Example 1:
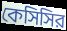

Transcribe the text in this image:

কেসিসির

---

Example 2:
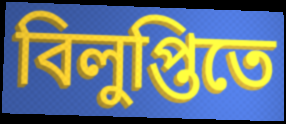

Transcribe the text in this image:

বিলুপ্তিতে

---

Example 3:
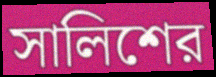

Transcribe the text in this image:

সালিশের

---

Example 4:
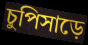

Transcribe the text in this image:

চুপিসাড়ে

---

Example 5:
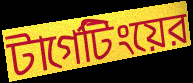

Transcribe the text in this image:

টার্গেটিংয়ের